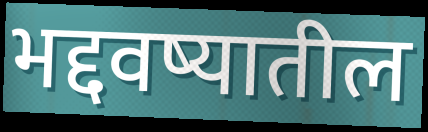
भद्दवष्यातील